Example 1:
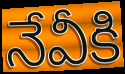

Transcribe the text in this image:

నేవీకి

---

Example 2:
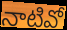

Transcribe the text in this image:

నాటివో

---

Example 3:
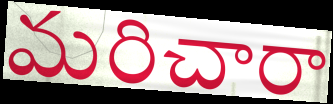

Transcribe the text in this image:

మరిచారా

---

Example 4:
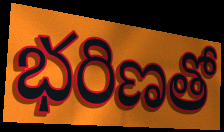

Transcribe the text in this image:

భరిణతో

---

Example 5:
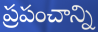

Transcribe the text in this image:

ప్రపంచాన్ని